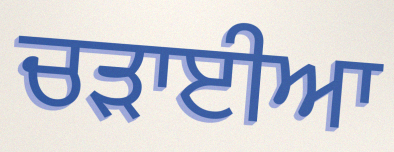
ਚੜਾਈਆ